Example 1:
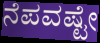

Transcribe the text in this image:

ನೆಪವಷ್ಟೇ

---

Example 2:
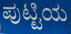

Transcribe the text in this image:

ಪುಟ್ಟಿಯ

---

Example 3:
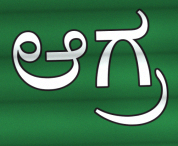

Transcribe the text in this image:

ಆಗ್ರ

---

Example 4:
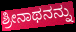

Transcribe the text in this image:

ಶ್ರೀನಾಥನನ್ನು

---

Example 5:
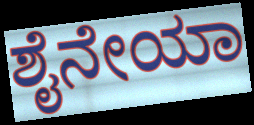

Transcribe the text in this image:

ಶೈನೇಯಾ